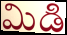
మిడి